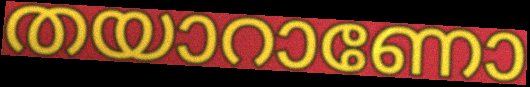
തയാറാണോ